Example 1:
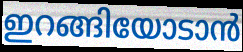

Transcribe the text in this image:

ഇറങ്ങിയോടാൻ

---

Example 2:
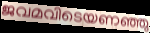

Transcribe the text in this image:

ജവമവിടെയണഞ്ഞു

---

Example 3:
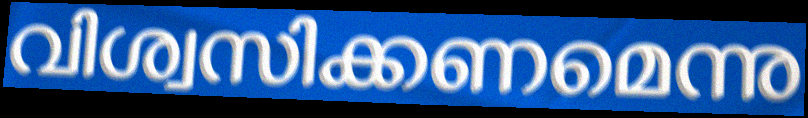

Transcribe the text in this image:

വിശ്വസിക്കണമെന്നു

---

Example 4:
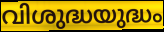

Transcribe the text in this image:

വിശുദ്ധയുദ്ധം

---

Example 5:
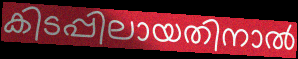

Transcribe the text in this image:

കിടപ്പിലായതിനാൽ